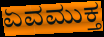
ಏವಮುಕ್ತ